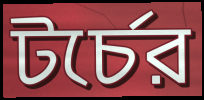
টর্চের